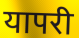
यापरी